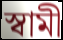
স্বামী